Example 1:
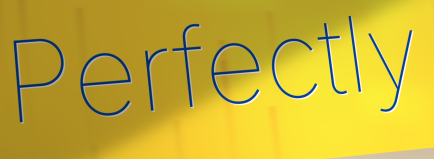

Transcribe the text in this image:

Perfectly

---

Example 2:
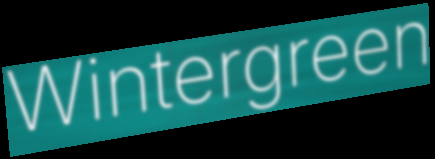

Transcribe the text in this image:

Wintergreen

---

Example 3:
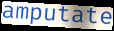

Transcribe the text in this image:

amputate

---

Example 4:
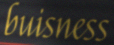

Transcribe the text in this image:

buisness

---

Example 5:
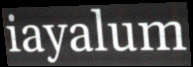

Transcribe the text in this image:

iayalum